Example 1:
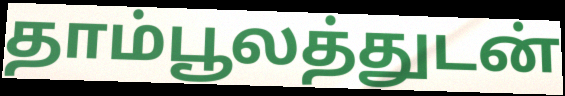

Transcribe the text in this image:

தாம்பூலத்துடன்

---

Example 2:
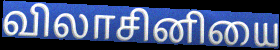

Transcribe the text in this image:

விலாசினியை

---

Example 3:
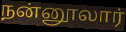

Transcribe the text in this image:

நன்னூலார்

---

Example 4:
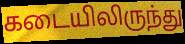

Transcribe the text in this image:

கடையிலிருந்து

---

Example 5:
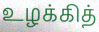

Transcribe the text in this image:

உழக்கித்